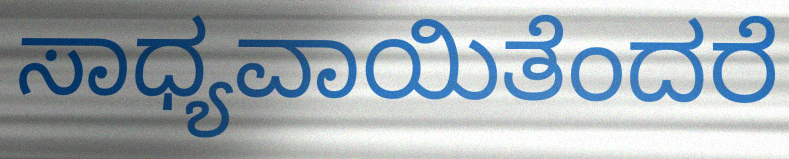
ಸಾಧ್ಯವಾಯಿತೆಂದರೆ